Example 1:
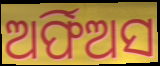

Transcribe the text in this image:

ଅର୍ଫିଅସ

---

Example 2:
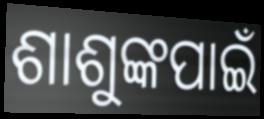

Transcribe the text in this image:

ଶାଶୁଙ୍କପାଇଁ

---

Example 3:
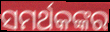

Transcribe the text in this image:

ସମର୍ଥକଙ୍କର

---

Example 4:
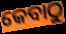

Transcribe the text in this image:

କେବାଠୁ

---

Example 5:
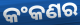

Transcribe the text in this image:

କଂକଣର